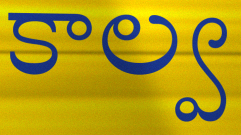
కాల్వ